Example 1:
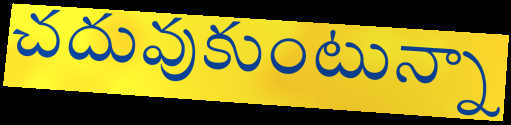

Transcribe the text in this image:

చదువుకుంటున్నా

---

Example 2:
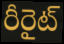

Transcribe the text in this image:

రీరైట్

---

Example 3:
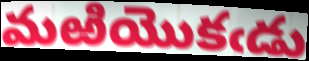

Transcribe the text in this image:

మఱియొకఁడు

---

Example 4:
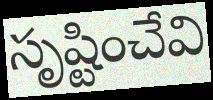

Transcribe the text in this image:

సృష్టించేవి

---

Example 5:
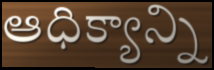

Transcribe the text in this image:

ఆధిక్యాన్ని